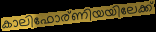
കാലിഫോര്ണിയയിലേക്ക്